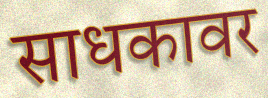
साधकावर